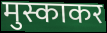
मुस्काकर